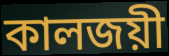
কালজয়ী